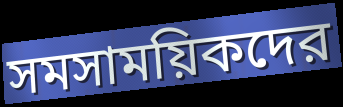
সমসাময়িকদের